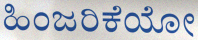
ಹಿಂಜರಿಕೆಯೋ